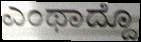
ಎಂಥಾದ್ದೊ